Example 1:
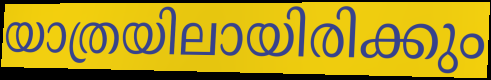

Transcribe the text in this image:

യാത്രയിലായിരിക്കും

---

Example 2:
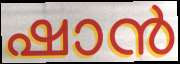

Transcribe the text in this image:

ഷാൻ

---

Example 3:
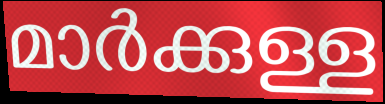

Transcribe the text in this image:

മാർക്കുള്ള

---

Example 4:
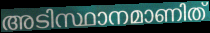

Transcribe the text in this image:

അടിസ്ഥാനമാണിത്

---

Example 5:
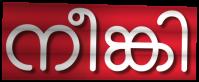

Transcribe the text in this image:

നീങ്കി